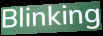
Blinking